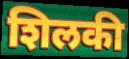
शिलकी